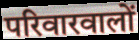
परिवारवालों